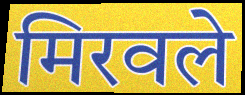
मिरवले